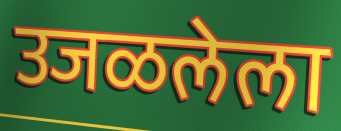
उजळलेला